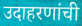
उदाहरणांची